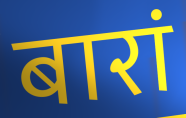
बारां